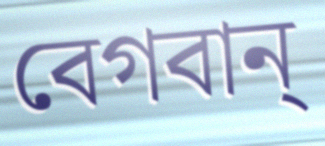
বেগবান্